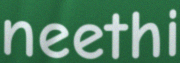
neethi